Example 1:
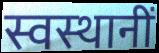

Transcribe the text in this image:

स्वस्थानीं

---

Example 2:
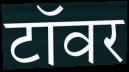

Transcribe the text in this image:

टॉवर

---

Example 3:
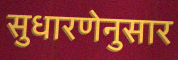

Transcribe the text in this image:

सुधारणेनुसार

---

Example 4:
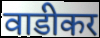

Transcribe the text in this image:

वाडीकर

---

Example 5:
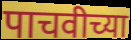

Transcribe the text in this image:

पाचवीच्या